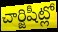
చార్జిషీట్లో